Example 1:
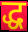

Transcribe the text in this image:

द्ध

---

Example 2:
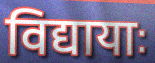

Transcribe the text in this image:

विद्यायाः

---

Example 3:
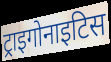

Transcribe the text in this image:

ट्राइगोनाइटिस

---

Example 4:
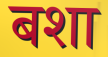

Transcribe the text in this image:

बशा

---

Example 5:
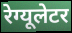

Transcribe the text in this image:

रेग्यूलेटर